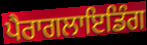
ਪੈਰਾਗਲਾਇਡਿੰਗ